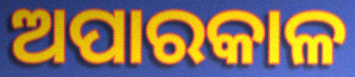
ଅପାରକାଳ